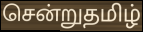
சென்றுதமிழ்